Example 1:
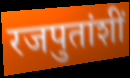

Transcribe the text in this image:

रजपुतांशीं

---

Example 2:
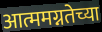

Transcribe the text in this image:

आत्ममग्नतेच्या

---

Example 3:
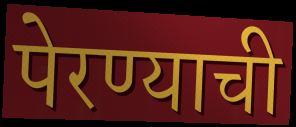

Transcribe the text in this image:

पेरण्याची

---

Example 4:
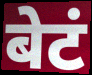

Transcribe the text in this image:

बेटं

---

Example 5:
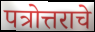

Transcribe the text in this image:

पत्रोत्तराचे